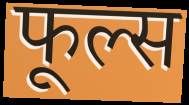
फूल्स